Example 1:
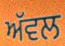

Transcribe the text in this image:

ਅੱਵਲ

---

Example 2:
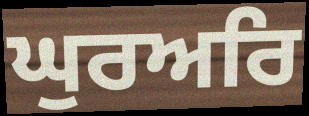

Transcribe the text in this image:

ਘੁਰਅਰਿ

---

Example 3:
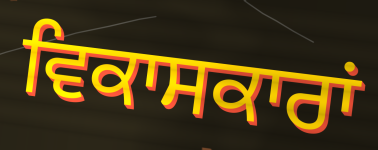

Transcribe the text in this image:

ਵਿਕਾਸਕਾਰਾਂ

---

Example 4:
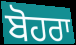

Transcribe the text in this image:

ਬੋਹਰਾ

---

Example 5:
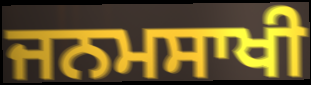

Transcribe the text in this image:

ਜਨਮਸਾਖੀ